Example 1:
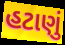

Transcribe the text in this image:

હટાણું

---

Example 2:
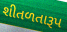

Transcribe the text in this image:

શીતળતારૂપ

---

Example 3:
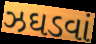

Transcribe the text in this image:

ઝઘડવાં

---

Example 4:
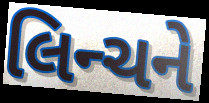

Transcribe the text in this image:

લિન્ચને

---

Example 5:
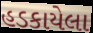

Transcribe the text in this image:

હડકાયેલા